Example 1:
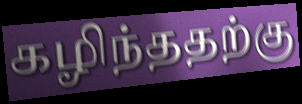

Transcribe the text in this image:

கழிந்ததற்கு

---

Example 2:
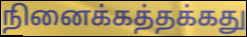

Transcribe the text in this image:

நினைக்கத்தக்கது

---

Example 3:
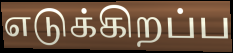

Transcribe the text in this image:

எடுக்கிறப்ப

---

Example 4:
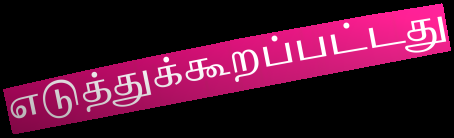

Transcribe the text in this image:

எடுத்துக்கூறப்பட்டது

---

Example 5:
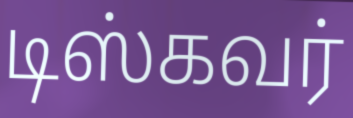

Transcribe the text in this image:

டிஸ்கவர்